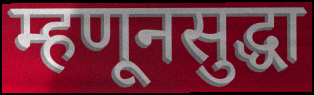
म्हणूनसुद्धा